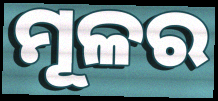
ମୂଳର